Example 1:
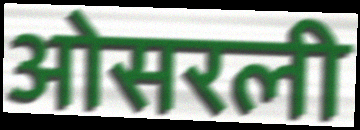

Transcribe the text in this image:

ओसरली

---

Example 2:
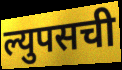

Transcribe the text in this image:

ल्युपसची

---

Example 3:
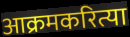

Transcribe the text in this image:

आक्रमकरित्या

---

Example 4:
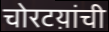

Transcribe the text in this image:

चोरटय़ांची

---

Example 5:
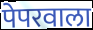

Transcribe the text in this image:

पेपरवाला